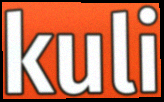
kuli